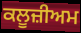
ਕਲੂਜ਼ੀਅਮ